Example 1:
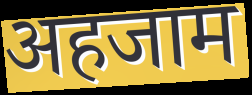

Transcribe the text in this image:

अहजाम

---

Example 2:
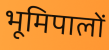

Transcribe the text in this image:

भूमिपालों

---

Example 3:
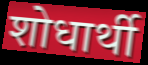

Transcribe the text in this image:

शोधार्थी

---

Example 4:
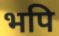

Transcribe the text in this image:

भपि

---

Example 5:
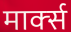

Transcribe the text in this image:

मार्क्‍स